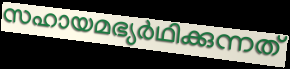
സഹായമഭ്യർഥിക്കുന്നത്